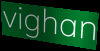
vighan